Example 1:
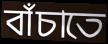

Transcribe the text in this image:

বাঁচাতে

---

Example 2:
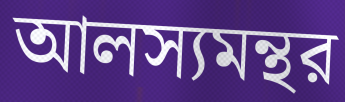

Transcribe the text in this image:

আলস্যমন্থর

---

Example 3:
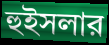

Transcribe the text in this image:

হুইসলার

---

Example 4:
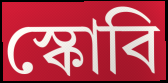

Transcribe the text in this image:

স্কোবি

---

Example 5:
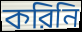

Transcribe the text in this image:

করিনি